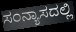
ಸಂನ್ಯಾಸದಲ್ಲಿ